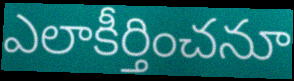
ఎలాకీర్తించనూ